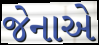
જેનાએ